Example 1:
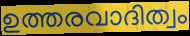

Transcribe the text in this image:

ഉത്തരവാദിത്വം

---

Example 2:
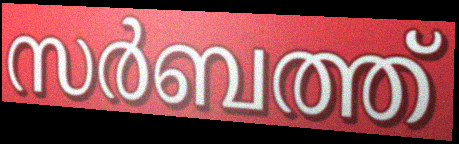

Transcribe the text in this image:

സർബത്ത്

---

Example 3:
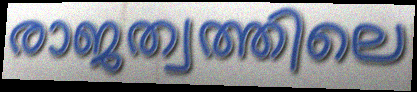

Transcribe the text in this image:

രാജത്വത്തിലെ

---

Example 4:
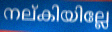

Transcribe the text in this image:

നല്കിയില്ലേ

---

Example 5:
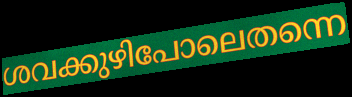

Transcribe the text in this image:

ശവക്കുഴിപോലെതന്നെ